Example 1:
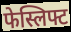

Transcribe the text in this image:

फेस्लिफ्ट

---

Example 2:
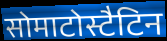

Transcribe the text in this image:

सोमाटोस्टैटिन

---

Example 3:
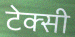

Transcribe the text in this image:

टेक्‍सी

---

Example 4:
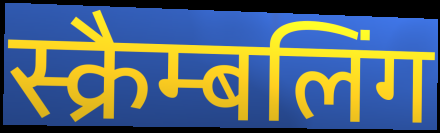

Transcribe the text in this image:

स्क्रैम्बलिंग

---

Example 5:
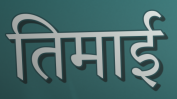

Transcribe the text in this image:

तिमाई